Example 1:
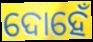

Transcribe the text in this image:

ଦୋହେଁ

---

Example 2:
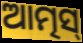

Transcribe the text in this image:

ଆତ୍ମସ୍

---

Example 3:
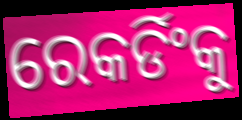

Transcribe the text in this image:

ରେକର୍ଡିଂକୁ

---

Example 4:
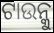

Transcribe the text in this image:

ଟାଉନ୍କୁ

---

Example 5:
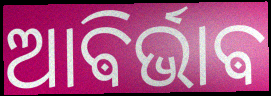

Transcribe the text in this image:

ଆଵିର୍ଭାଵ